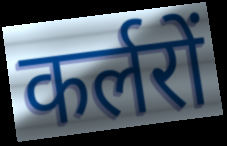
कर्लरों